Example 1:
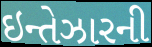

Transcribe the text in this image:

ઇન્તેઝારની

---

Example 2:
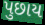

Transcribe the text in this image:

પુછાય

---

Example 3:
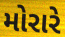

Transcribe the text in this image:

મોરારે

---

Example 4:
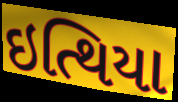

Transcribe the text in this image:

ઇત્થિયા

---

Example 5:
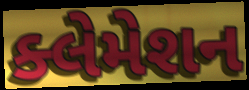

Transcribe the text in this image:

ક્લેમેશન